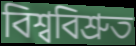
বিশ্ববিশ্ৰুত